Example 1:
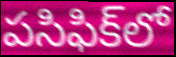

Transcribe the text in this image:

పసిఫిక్‌లో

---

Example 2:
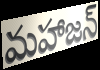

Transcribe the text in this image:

మహాజన్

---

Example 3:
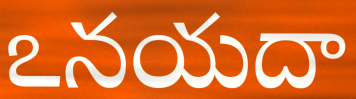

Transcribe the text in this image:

ఽనయదా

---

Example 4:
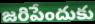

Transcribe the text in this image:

జరిపేందుకు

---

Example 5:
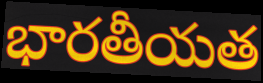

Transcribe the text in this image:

భారతీయత